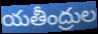
యతీంద్రుల